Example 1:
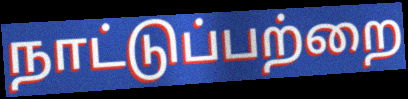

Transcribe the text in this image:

நாட்டுப்பற்றை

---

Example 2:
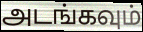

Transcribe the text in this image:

அடங்கவும்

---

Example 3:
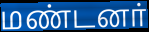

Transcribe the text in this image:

மண்டனர்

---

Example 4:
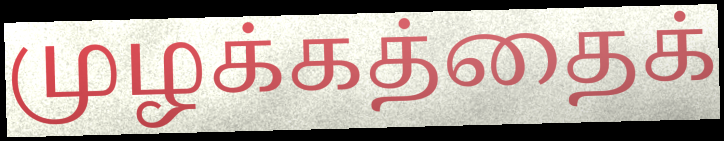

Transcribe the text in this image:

முழக்கத்தைக்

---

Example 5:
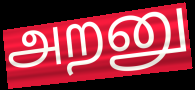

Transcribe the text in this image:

அறனு